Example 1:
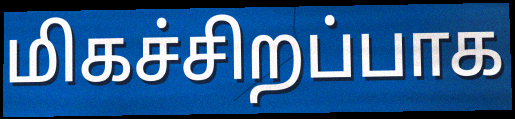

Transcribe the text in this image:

மிகச்சிறப்பாக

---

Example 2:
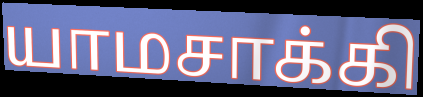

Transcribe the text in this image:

யாமசாக்கி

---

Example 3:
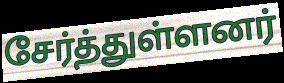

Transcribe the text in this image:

சேர்த்துள்ளனர்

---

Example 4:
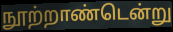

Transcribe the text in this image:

நூற்றாண்டென்று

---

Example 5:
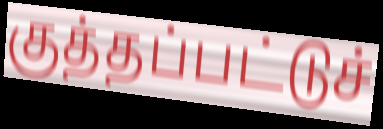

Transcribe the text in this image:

குத்தப்பட்டுச்